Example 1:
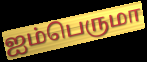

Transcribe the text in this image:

ஐம்பெருமா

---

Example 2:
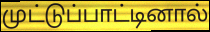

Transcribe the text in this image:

முட்டுப்பாட்டினால்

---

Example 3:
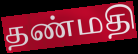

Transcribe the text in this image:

தண்மதி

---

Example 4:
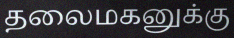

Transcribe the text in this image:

தலைமகனுக்கு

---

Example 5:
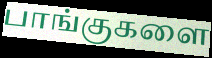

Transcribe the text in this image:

பாங்குகளை